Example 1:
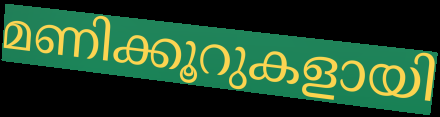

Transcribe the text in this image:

മണിക്കൂറുകളായി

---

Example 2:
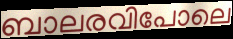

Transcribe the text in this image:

ബാലരവിപോലെ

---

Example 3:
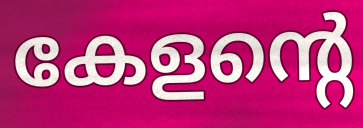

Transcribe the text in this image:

കേളന്റെ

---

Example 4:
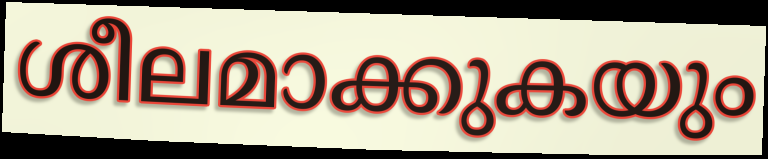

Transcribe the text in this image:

ശീലമാക്കുകയും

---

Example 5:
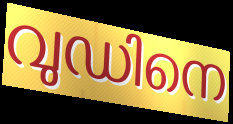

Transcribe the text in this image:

വുഡിനെ